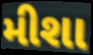
મીશા